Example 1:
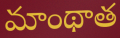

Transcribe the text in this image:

మాంథాత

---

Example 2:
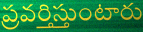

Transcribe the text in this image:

ప్రవర్తిస్తుంటారు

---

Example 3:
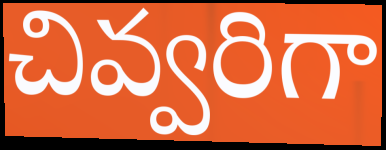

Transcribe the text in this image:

చివ్వరిగా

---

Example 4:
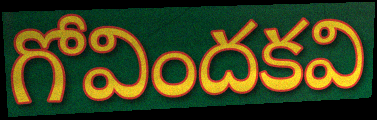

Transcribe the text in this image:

గోవిందకవి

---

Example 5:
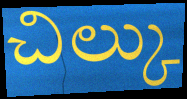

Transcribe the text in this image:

చిల్కు